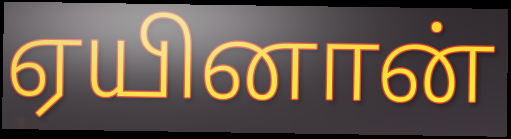
ஏயினான்